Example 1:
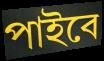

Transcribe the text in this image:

পাইবে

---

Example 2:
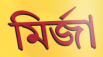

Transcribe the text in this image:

মির্জা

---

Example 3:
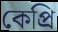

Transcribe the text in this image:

কেপ্রি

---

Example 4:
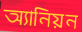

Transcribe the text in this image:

অ্যানিয়ন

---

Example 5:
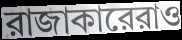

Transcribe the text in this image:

রাজাকারেরাও